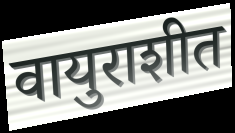
वायुराशीत